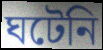
ঘটেনি